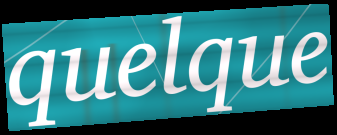
quelque